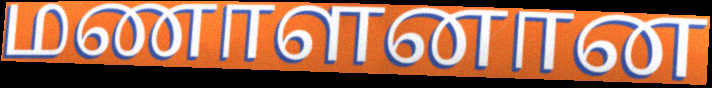
மணாளனான